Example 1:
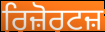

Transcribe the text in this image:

ਰਿਜ਼ੋਰਟਜ਼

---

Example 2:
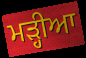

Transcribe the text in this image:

ਮੜ੍ਹੀਆ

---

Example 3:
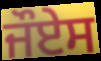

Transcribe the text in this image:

ਜੌਏਸ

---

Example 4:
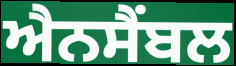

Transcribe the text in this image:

ਐਨਸੈਂਬਲ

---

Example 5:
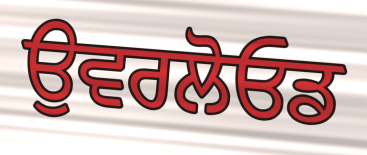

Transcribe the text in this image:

ਉਵਰਲੋਓਡ